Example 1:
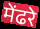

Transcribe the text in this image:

मेंढरे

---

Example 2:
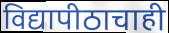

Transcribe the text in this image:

विद्यापीठाचाही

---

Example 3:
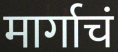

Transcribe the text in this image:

मार्गाचं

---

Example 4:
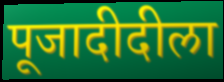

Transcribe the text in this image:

पूजादीदीला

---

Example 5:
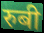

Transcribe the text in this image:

रुबी